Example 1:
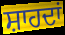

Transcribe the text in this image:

ਸ਼ਾਹਦਾਂ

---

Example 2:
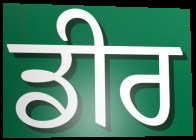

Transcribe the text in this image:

ਡੀਰ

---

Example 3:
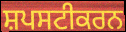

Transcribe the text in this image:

ਸ਼ਪਸਟੀਕਰਨ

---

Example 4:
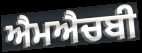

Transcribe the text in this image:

ਐਮਐਚਬੀ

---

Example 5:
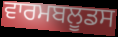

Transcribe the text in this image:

ਵਾਰਮਬਲੂਡਸ